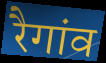
रैगांव